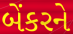
બેંકરને